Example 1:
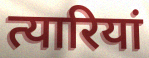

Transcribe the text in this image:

त्यारियां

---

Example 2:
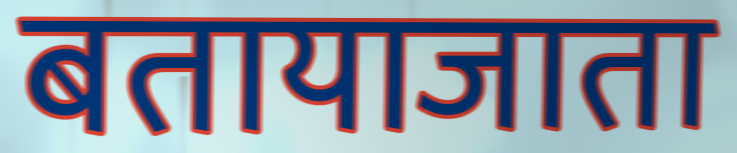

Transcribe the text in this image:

बतायाजाता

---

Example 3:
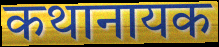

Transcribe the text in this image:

कथानायक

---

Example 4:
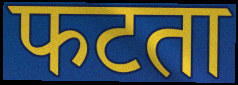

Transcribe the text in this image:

फटता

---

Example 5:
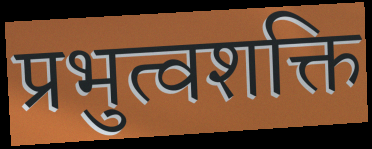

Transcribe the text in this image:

प्रभुत्वशक्ति